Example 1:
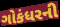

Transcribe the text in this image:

ગોકંધરની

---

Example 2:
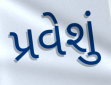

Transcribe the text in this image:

પ્રવેશું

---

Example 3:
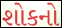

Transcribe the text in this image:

શોકનો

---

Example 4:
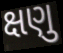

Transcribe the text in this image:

ક્ષણુ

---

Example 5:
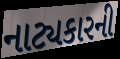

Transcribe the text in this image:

નાટ્યકારની